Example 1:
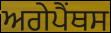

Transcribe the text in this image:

ਅਗੇਪੈਂਥਸ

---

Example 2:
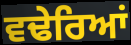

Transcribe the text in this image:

ਵਢੇਰਿਆਂ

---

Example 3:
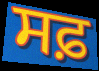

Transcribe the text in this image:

ਸਫ਼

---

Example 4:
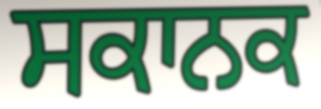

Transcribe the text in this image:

ਸਕਾਨਕ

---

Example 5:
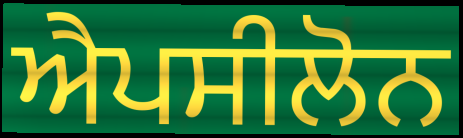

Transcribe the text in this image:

ਐਪਸੀਲੋਨ